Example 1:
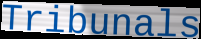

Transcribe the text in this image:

Tribunals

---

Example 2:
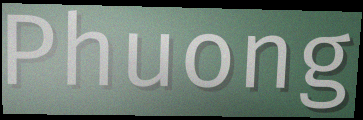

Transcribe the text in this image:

Phuong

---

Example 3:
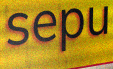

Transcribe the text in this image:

sepu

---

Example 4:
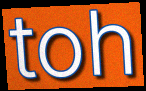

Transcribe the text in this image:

toh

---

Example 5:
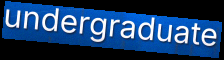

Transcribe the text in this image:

undergraduate